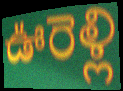
ఊరెళ్లి